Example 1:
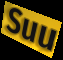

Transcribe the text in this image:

Suu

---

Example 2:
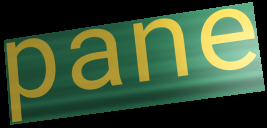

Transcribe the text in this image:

pane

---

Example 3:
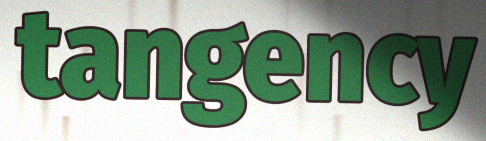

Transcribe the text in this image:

tangency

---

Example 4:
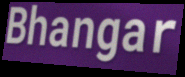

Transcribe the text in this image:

Bhangar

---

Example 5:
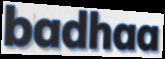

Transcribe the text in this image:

badhaa